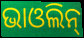
ଭାଓଲିନ୍